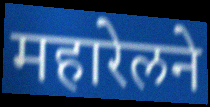
महारेलने